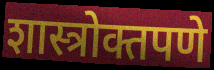
शास्त्रोक्तपणे